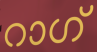
റാഗ്